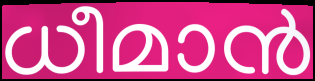
ധീമാൻ